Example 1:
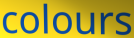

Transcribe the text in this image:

colours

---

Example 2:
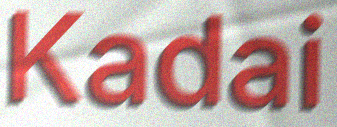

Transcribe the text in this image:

Kadai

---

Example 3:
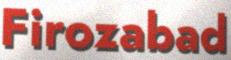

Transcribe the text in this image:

Firozabad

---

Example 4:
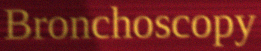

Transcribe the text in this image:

Bronchoscopy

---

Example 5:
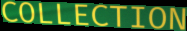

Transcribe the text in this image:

COLLECTION